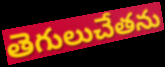
తెగులుచేతను